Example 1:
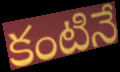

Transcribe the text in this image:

కంటినే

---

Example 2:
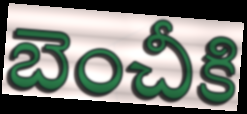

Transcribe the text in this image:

బెంచీకి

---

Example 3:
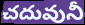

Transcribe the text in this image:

చదువునీ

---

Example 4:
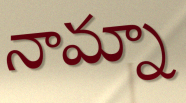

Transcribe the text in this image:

నామ్నా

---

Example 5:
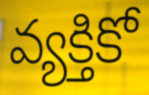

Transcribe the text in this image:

వ్యక్తికో